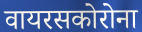
वायरसकोरोना